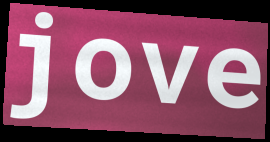
jove